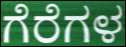
ಗೆರೆಗಳ